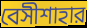
বেসীশাহার